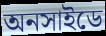
অনসাইডে